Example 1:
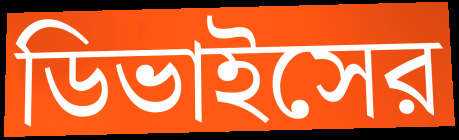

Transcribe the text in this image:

ডিভাইসের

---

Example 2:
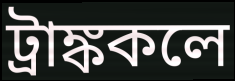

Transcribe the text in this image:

ট্রাঙ্ককলে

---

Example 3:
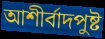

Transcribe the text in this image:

আশীর্বাদপুষ্ট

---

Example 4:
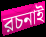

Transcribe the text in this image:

রচনাই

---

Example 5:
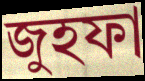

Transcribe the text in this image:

জুহফা